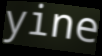
yine